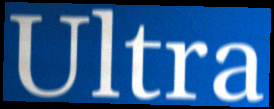
Ultra